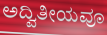
ಅದ್ವಿತೀಯವೂ